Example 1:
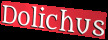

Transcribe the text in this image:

Dolichus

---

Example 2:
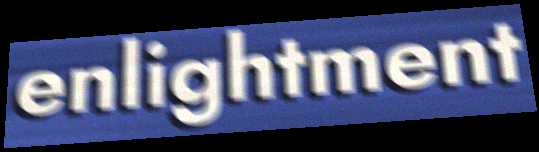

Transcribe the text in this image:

enlightment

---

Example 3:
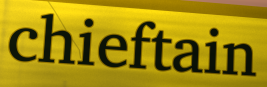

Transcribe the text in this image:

chieftain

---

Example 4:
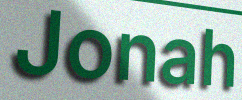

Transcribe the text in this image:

Jonah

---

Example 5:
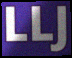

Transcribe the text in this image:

LLJ